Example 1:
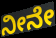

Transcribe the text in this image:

ನೀನೇ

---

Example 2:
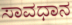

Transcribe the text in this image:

ಸಾವಧಾನ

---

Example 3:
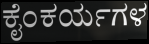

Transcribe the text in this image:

ಕೈಂಕರ್ಯಗಳ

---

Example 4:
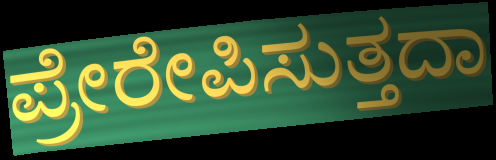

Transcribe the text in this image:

ಪ್ರೇರೇಪಿಸುತ್ತದಾ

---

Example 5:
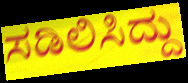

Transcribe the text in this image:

ಸಡಿಲಿಸಿದ್ದು